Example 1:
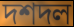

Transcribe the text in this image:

দশদল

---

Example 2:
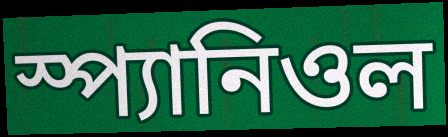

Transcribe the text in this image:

স্প্যানিওল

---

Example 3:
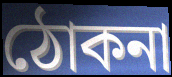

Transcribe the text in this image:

ঠোকনা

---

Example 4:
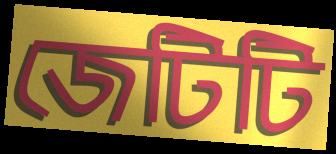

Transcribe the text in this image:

জেটিটি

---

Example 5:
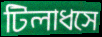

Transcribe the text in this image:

টিলাধসে